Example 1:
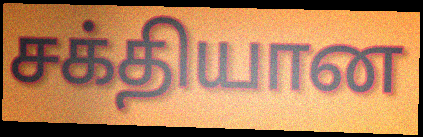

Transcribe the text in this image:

சக்தியான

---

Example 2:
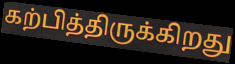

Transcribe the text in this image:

கற்பித்திருக்கிறது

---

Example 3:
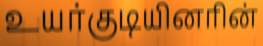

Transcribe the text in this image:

உயர்குடியினரின்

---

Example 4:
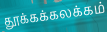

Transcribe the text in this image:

தூக்கக்கலக்கம்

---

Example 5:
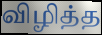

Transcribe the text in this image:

விழித்த